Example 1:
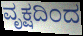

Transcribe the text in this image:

ವೃಕ್ಷದಿಂದ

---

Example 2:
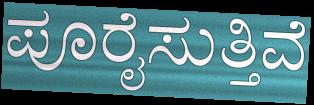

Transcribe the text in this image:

ಪೂರೈಸುತ್ತಿವೆ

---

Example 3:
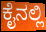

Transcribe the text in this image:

ಕೈನಲ್ಲಿ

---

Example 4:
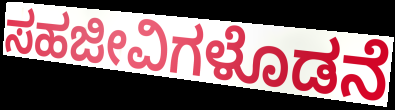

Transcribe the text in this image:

ಸಹಜೀವಿಗಳೊಡನೆ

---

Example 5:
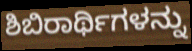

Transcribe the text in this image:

ಶಿಬಿರಾರ್ಥಿಗಳನ್ನು